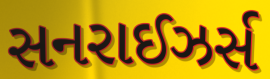
સનરાઈઝર્સ